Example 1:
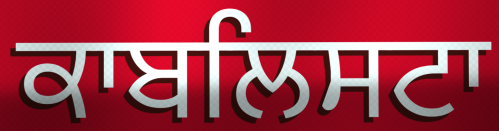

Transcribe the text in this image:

ਕਾਬਲਿਸਟਾ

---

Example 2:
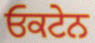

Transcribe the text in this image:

ਓਕਟੇਨ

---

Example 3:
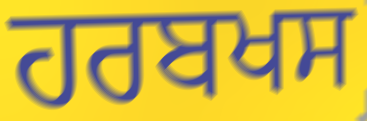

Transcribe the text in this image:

ਹਰਬਖਸ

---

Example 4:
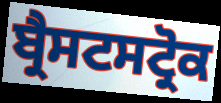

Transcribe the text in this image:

ਬ੍ਰੈਸਟਸਟ੍ਰੋਕ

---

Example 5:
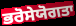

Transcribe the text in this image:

ਭਰੋਸੇਯੋਗਤਾ